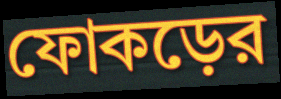
ফোকড়ের